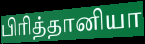
பிரித்தானியா